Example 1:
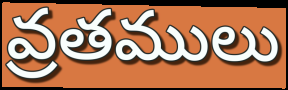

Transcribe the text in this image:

వ్రతములు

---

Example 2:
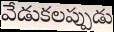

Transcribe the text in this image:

వేడుకలప్పుడు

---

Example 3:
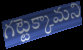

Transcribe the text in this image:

గట్టెక్కామని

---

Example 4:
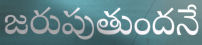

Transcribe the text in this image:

జరుపుతుందనే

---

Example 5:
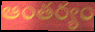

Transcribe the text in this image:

ఆంతర్యం